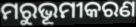
ମରୁଭୂମୀକରଣ